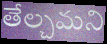
తేల్చమని